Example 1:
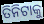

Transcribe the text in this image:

ତିନିଟାକୁ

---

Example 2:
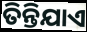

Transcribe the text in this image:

ତିନ୍ତିଯାଏ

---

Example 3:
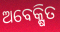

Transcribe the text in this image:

ଅବେକ୍ଷିତ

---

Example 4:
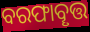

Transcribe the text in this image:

ବରଫାବୄତ୍ତ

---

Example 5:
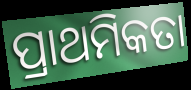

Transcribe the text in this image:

ପ୍ରାଥମିକତା